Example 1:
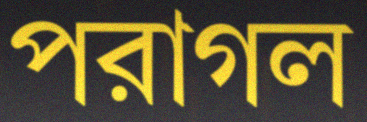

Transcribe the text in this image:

পরাগল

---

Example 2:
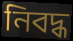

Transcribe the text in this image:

নিবদ্ধ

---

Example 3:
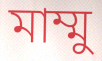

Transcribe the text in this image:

মাম্মু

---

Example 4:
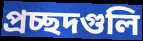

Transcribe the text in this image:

প্রচ্ছদগুলি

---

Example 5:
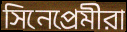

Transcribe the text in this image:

সিনেপ্রেমীরা